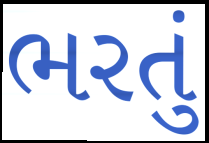
ભરતું